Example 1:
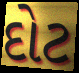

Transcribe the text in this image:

દોટ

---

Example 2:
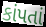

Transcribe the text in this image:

કાંપતાં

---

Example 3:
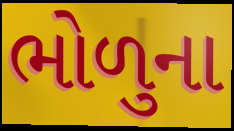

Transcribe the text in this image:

ભોળુના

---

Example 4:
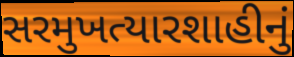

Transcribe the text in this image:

સરમુખત્યારશાહીનું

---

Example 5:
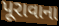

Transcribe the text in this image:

પૂરાવાના